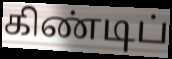
கிண்டிப்